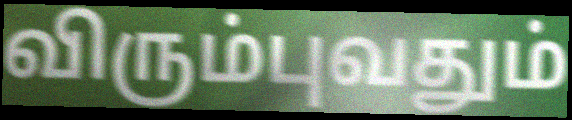
விரும்புவதும்